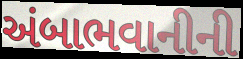
અંબાભવાનીની